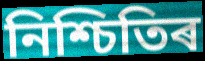
নিশ্চিতিৰ